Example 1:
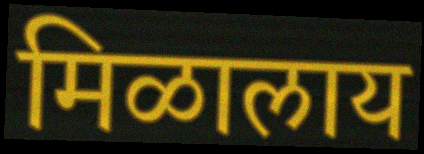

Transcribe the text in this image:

मिळालाय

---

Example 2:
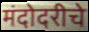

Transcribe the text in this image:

मंदोदरीचे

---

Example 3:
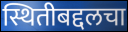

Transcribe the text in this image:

स्थितीबद्दलचा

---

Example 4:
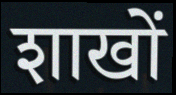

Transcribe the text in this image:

शाखों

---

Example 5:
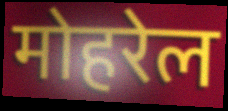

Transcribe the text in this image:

मोहरेल